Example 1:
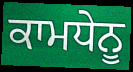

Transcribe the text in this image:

ਕਾਮਧੇਨੂ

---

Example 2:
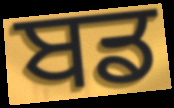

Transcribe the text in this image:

ਬਡ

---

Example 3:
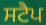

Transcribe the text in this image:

ਸਟੈਪ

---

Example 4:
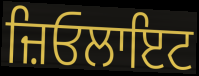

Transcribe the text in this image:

ਜ਼ਿਓਲਾਇਟ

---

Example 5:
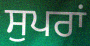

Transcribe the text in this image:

ਸੁਪਰਾਂ